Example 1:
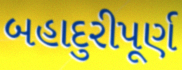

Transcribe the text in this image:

બહાદુરીપૂર્ણ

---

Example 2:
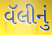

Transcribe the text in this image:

વૅલીનું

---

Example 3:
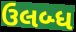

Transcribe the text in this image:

ઉલબ્ધ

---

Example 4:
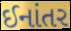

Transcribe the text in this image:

ઈનાંતર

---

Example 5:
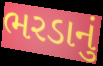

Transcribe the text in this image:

ભરડાનું